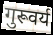
गुरूवर्य